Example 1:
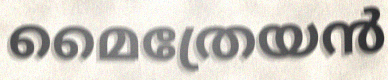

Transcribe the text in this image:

മൈത്രേയൻ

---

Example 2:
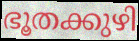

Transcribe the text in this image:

ഭൂതക്കുഴി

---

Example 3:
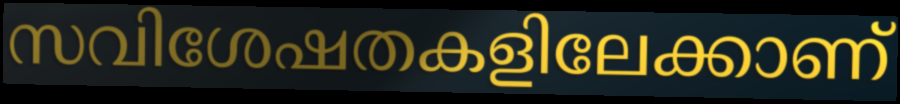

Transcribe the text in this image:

സവിശേഷതകളിലേക്കാണ്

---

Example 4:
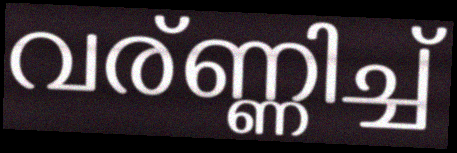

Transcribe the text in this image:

വര്ണ്ണിച്ച്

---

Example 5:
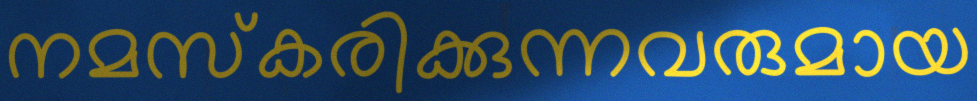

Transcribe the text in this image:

നമസ്കരിക്കുന്നവരുമായ